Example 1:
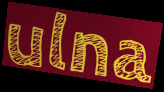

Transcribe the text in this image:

ulna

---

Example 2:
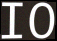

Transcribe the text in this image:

IO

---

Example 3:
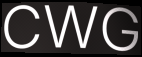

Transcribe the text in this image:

CWG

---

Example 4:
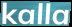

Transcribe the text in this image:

kalla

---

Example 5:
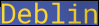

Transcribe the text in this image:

Deblin